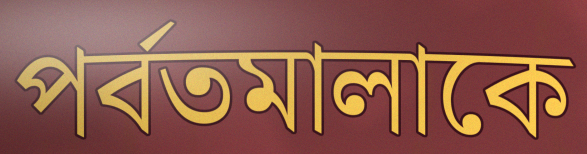
পর্বতমালাকে